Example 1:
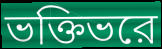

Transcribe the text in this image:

ভক্তিভরে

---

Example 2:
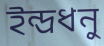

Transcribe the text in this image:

ইন্দ্রধনু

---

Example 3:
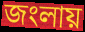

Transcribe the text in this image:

জংলায়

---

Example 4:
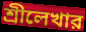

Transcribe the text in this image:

শ্রীলেখার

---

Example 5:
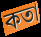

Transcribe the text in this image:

কতা